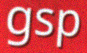
gsp